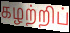
கழற்றிப்